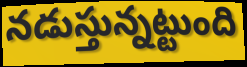
నడుస్తున్నట్టుంది